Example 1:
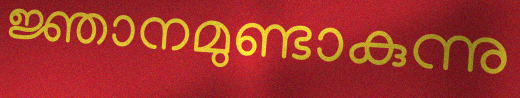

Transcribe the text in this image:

ജ്ഞാനമുണ്ടാകുന്നു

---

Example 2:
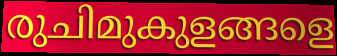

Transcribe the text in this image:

രുചിമുകുളങ്ങളെ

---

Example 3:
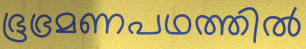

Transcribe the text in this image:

ഭൂഭ്രമണപഥത്തിൽ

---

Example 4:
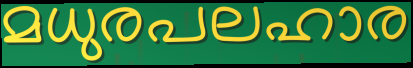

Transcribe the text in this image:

മധുരപലഹാര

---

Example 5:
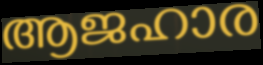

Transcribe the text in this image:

ആജഹാര